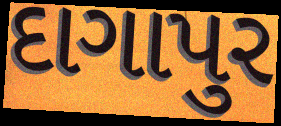
દાગાપુર